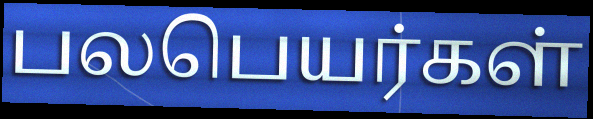
பலபெயர்கள்